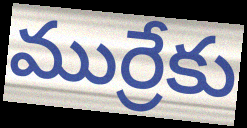
ముర్రేకు